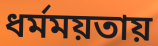
ধর্মময়তায়